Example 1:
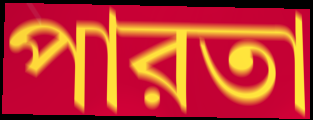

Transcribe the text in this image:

পারতা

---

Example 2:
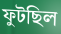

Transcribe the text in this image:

ফুটছিল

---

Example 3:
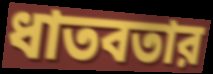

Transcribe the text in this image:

ধাতবতার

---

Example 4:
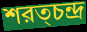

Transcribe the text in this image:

শরত্চন্দ্র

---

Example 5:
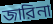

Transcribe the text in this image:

জারিনা